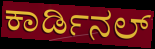
ಕಾರ್ಡಿನಲ್